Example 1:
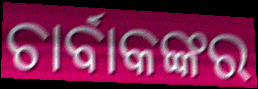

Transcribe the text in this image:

ଚାର୍ବାକଙ୍କର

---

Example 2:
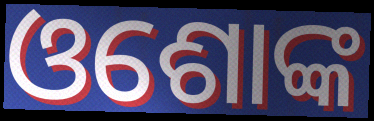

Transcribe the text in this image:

ଓଶୋଙ୍କ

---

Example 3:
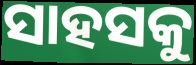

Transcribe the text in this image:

ସାହସକୁ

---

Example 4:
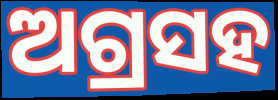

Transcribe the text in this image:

ଅଗ୍ରସହ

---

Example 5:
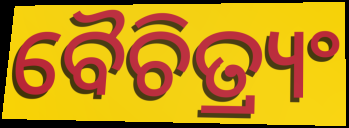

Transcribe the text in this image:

ବୈଚିତ୍ର୍ୟଂ